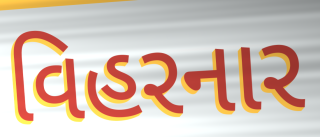
વિહરનાર